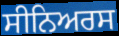
ਸੀਨਿਅਰਸ